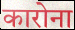
कारोना